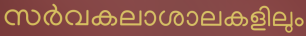
സർവകലാശാലകളിലും